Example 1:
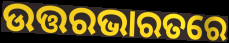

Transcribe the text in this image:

ଉତ୍ତରଭାରତରେ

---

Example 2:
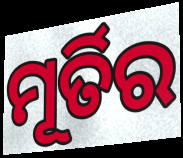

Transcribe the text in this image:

ମୂର୍ତିର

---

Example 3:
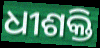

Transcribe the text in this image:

ଧୀଶକ୍ତି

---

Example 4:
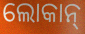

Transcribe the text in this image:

ଲୋକାନ୍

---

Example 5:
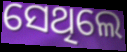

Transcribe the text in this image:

ସେଥିଲେ